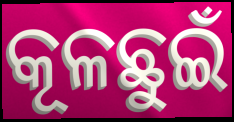
କୂଳଛୁଇଁ